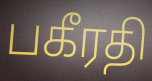
பகீரதி